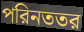
পরিনততর